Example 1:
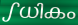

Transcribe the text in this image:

ഽധികം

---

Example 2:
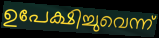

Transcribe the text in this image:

ഉപേക്ഷിച്ചുവെന്ന്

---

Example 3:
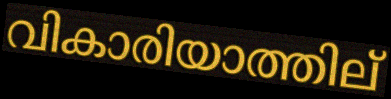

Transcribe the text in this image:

വികാരിയാത്തില്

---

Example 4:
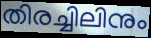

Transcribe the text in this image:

തിരച്ചിലിനും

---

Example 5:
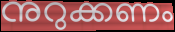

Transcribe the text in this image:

നുറുക്കണം